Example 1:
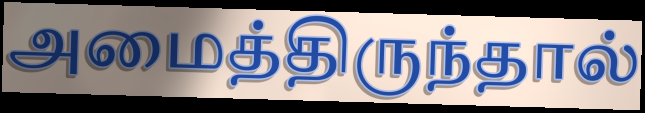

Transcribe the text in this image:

அமைத்திருந்தால்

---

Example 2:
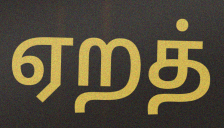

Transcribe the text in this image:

ஏறத்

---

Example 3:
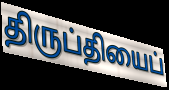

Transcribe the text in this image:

திருப்தியைப்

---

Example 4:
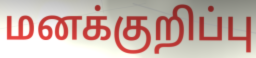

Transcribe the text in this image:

மனக்குறிப்பு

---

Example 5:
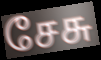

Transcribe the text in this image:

சேசு